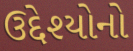
ઉદ્દેશ્યોનો